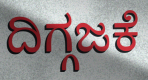
ದಿಗ್ಗಜಕೆ